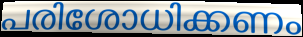
പരിശോധിക്കണം